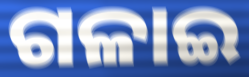
ଗଳାଇ